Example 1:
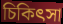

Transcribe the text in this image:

চিকিৎসা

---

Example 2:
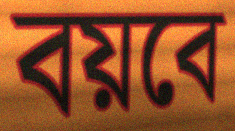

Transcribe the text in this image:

বয়বে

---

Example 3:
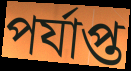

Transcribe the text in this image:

পর্যাপ্ত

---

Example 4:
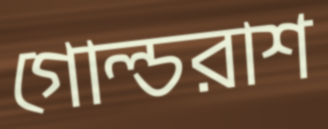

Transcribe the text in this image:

গোল্ডরাশ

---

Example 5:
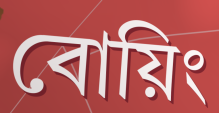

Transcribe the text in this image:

বোয়িং